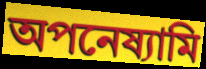
অপনেষ্যামি